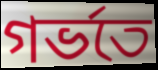
গৰ্ভতে